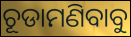
ଚୂଡାମଣିବାବୁ